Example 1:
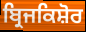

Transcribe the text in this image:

ਬ੍ਰਿਜਕਿਸ਼ੋਰ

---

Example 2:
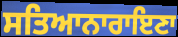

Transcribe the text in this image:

ਸਤਿਆਨਾਰਾਇਣਾ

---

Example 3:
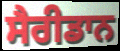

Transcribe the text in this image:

ਸੈਰੀਡਾਨ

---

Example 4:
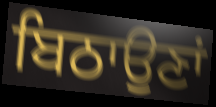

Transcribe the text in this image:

ਬਿਠਾਉਣਾਂ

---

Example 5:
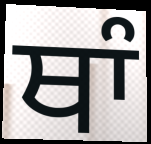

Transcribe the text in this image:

ਥਾੰ